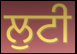
ਲੁਟੀ